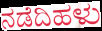
ನಡೆದಿಹಳು